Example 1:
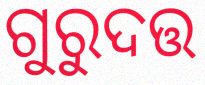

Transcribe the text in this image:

ଗୁରୁଦତ୍ତ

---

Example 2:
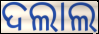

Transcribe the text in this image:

ଦଲାଲ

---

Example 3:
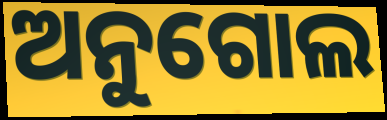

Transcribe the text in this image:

ଅନୁଗୋଲ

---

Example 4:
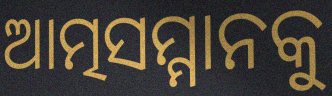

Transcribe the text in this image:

ଆତ୍ମସମ୍ମାନକୁ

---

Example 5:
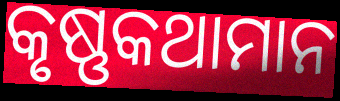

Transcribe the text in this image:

କୃଷ୍ଣକଥାମାନ